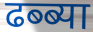
ढब्ब्या